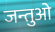
जन्तुओ